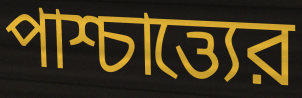
পাশ্চাত্ত্যের